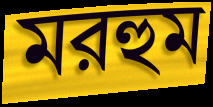
মরহুম